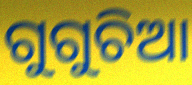
ଗୁଗୁଚିଆ